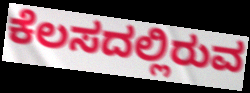
ಕೆಲಸದಲ್ಲಿರುವ